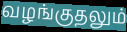
வழங்குதலும்